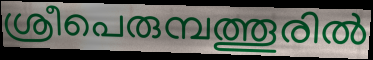
ശ്രീപെരുമ്പത്തൂരിൽ